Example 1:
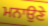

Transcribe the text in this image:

ਮਨਾਉਣੇ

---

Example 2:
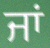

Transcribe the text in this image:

ਜਾਂ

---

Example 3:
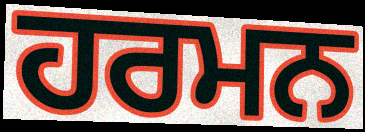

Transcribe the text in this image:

ਹਰਮਨ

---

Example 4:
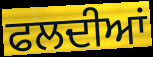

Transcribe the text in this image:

ਫਲਦੀਆਂ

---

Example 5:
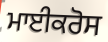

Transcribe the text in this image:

ਮਾਈਕਰੋਸ